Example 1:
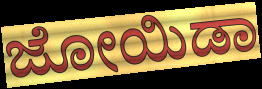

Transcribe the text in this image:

ಜೋಯಿಡಾ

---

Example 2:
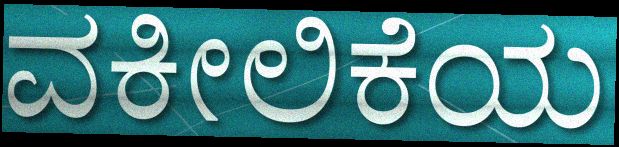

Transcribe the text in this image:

ವಕೀಲಿಕೆಯ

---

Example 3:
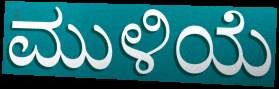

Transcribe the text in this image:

ಮುಳಿಯೆ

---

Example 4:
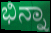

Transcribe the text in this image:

ಭಿನ್ನಾ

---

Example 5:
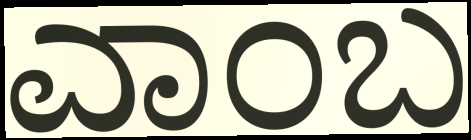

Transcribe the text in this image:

ಎಾಂಬ